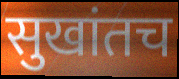
सुखांतच